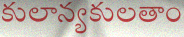
కులాన్యకులతాం